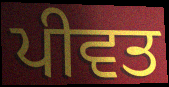
ਪੀਵਤ